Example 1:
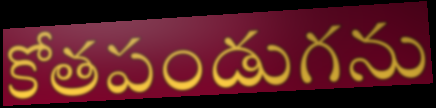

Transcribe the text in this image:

కోతపండుగను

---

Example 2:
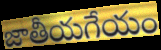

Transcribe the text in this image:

జాతీయగేయం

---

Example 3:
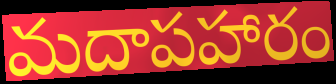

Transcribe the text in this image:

మదాపహారం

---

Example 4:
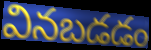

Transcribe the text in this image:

వినబడడం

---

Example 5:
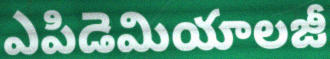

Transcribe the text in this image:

ఎపిడెమియాలజీ